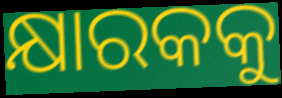
କ୍ଷାରକକୁ